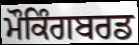
ਮੌਕਿੰਗਬਰਡ